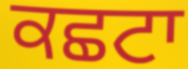
ਕਛਟਾ